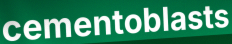
cementoblasts